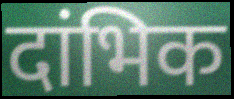
दांभिक